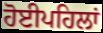
ਹੋਈਪਹਿਲਾਂ